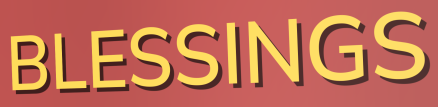
BLESSINGS